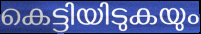
കെട്ടിയിടുകയും